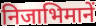
निजाभिमानें